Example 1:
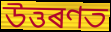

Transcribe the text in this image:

উত্তৰণত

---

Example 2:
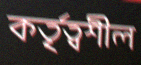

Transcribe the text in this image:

কৰ্তৃত্বশীল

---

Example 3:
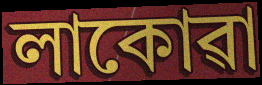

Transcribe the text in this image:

লাকোৱা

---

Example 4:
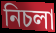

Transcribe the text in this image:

নিচলা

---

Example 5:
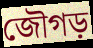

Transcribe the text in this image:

জৌগড়